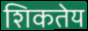
शिकतेय